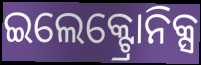
ଇଲେକ୍ଟ୍ରୋନିକ୍ସ